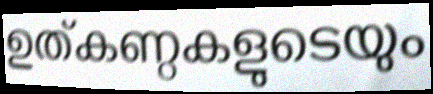
ഉത്കണ്ഠകളുടെയും